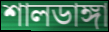
শালডাঙ্গা